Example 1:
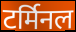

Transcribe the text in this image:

टर्मिनल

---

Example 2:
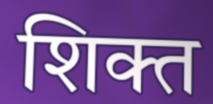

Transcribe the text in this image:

शिक्त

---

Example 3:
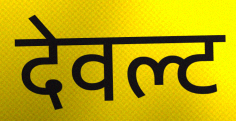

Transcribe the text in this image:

देवल्ट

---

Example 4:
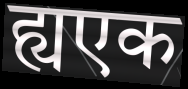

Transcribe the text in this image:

ह्यएक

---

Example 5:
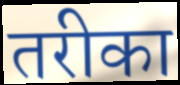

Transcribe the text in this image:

तरीका